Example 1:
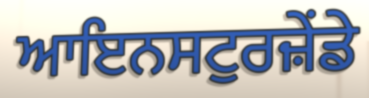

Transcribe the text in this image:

ਆਇਨਸਟੁਰਜ਼ੇਂਡੇ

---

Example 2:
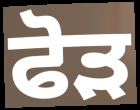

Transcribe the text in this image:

ਫੋਡ਼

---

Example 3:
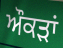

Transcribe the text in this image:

ਔਕਡ਼ਾਂ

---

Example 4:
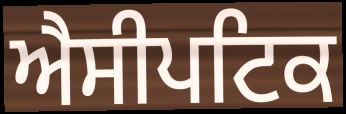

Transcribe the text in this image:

ਐਸੀਪਟਿਕ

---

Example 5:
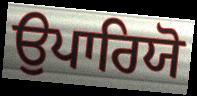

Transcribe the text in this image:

ਉਪਾਰਿਯੋ